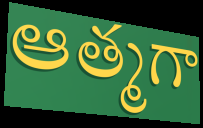
ఆత్మగా